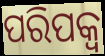
ପରିପକ୍ଵ